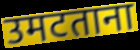
उमटताना